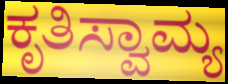
ಕೃತಿಸ್ವಾಮ್ಯ